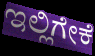
ಇಲ್ಲಿಗೇಕೆ